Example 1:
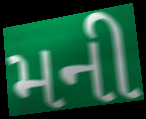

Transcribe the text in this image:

મની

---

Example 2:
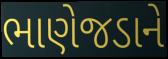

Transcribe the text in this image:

ભાણેજડાને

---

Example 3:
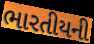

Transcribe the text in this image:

ભારતીયની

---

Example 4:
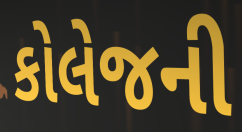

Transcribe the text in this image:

કોલેજની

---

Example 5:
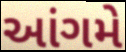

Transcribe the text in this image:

આંગમે